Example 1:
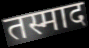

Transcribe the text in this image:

तस्माद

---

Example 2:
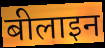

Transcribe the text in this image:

बीलाइन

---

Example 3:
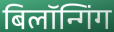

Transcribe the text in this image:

बिलॉन्गिंग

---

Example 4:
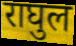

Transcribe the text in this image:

राघुल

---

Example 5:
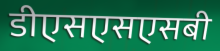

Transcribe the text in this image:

डीएसएसएसबी